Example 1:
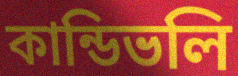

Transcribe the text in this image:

কান্ডিভলি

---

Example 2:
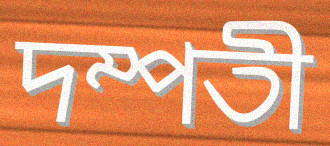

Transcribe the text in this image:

দম্পতী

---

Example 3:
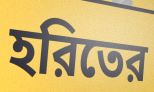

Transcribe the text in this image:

হরিতের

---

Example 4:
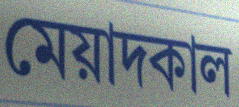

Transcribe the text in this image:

মেয়াদকাল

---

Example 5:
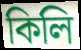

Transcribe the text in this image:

কিলি